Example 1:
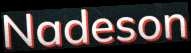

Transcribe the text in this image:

Nadeson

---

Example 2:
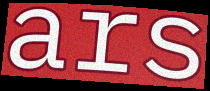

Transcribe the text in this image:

ars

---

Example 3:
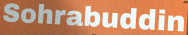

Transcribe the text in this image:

Sohrabuddin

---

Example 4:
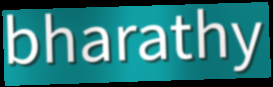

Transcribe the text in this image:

bharathy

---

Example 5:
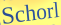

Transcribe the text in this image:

Schorl